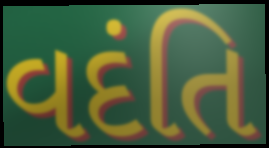
વદંતિ